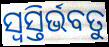
ସ୍ୱସ୍ତିର୍ଭବତୁ